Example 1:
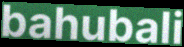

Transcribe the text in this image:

bahubali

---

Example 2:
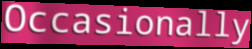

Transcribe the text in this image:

Occasionally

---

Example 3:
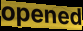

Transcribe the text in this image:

opened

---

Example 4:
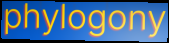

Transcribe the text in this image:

phylogony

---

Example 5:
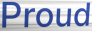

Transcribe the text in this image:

Proud